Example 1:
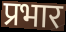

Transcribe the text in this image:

प्रभार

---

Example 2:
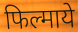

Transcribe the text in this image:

फिल्माये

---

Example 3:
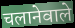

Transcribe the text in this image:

चलानेवाले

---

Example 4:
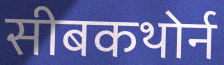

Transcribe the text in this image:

सीबकथोर्न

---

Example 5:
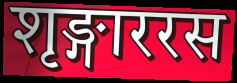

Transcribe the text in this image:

शृङ्गाररस